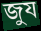
জুয